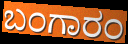
ಬಂಗಾರಂ